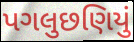
પગલુછણિયું